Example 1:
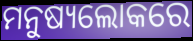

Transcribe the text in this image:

ମନୁଷ୍ୟଲୋକରେ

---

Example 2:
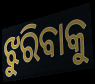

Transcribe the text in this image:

ଝୁରିବାକୁ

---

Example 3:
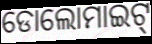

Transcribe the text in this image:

ଡୋଲୋମାଇଟ୍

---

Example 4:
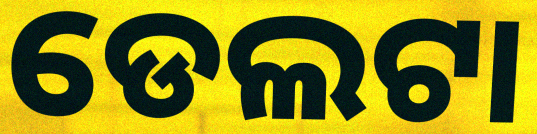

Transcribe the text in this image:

ଡେଲଟା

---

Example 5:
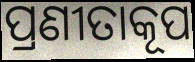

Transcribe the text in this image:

ପ୍ରଣୀତାକୂପ